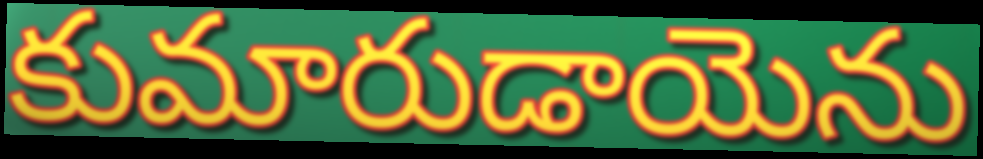
కుమారుడాయెను